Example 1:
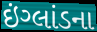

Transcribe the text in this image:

ઇંગ્લાંડના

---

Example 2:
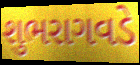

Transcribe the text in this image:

શુભરાગવડે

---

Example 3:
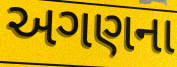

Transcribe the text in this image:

અગણના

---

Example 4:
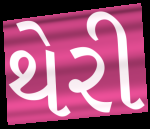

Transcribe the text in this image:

થેરી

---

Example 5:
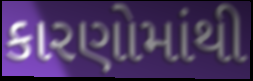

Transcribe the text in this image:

કારણોમાંથી